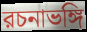
রচনাভঙ্গি